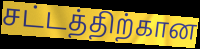
சட்டத்திற்கான